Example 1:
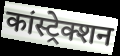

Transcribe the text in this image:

कांस्ट्रेक्शन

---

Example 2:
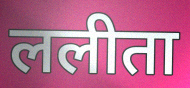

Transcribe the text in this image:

ललीता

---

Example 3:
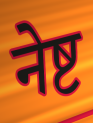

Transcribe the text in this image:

नेष्ट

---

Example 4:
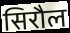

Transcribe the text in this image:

सिरौल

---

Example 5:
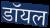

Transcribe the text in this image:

डॉयल